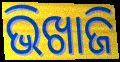
ଭିଖାଜି